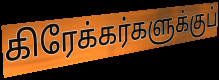
கிரேக்கர்களுக்குப்